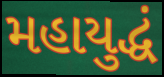
મહાયુદ્ધં